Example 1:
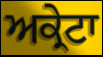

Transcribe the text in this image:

ਅਕ੍ਰੇਟਾ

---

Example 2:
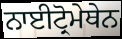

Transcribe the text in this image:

ਨਾਈਟ੍ਰੋਮੇਥੇਨ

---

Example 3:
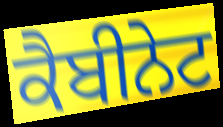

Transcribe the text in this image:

ਕੈਬੀਨੇਟ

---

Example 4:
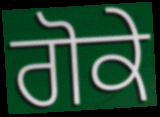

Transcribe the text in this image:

ਗੋਕੇ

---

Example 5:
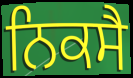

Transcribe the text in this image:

ਨਿਕਸੈ